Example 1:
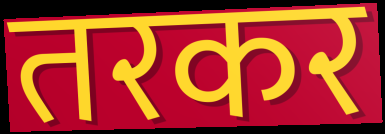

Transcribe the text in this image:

तरकर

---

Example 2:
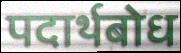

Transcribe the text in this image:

पदार्थबोध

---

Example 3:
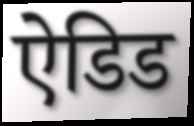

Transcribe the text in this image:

ऐडिड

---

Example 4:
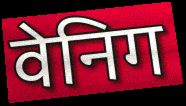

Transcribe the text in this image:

वेनिग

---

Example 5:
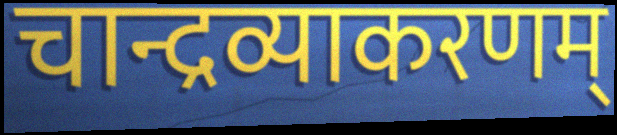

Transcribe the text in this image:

चान्द्रव्याकरणम्